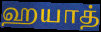
ஹயாத்